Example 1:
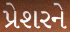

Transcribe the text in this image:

પ્રેશરને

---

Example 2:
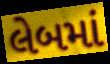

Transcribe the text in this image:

લેબમાં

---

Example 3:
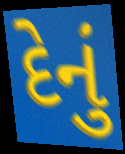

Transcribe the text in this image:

દેનું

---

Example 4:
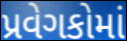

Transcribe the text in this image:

પ્રવેગકોમાં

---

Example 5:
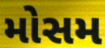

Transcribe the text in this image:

મોસમ